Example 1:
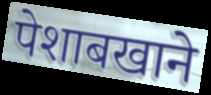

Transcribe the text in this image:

पेशाबखाने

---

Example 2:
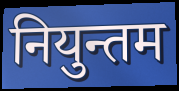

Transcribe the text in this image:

नियुन्तम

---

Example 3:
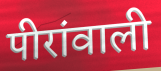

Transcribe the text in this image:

पीरांवाली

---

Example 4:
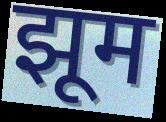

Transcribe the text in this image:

झूम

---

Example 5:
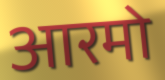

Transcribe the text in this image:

आरमो